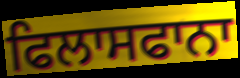
ਫਿਲਾਸਫਾਨਾ